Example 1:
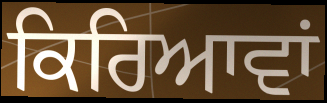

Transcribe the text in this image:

ਕਿਰਿਆਵਾਂ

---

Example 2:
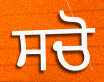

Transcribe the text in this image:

ਸਚੋ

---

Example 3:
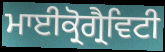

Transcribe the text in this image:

ਮਾਈਕ੍ਰੋਗ੍ਰੈਵਿਟੀ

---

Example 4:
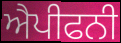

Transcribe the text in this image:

ਐਪੀਫਨੀ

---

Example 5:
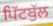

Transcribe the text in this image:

ਪਿੱਟਬੁੱਲ